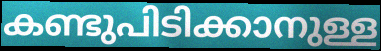
കണ്ടുപിടിക്കാനുള്ള